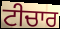
ਟੀਚਾਰ